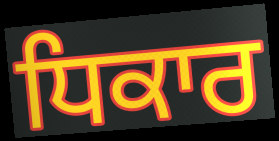
ਧਿਕਾਰ